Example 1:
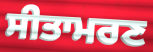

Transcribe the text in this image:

ਸੀਤਾਮਰਣ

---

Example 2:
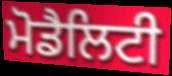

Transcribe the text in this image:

ਮੋਡੈਲਿਟੀ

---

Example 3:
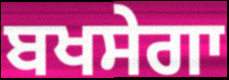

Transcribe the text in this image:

ਬਖਸੇਗਾ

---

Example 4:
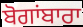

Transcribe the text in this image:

ਬੋਗਾਂਬਾਰਾ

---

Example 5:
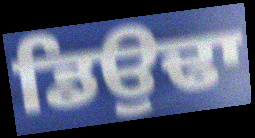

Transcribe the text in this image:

ਡਿਉਢਾ